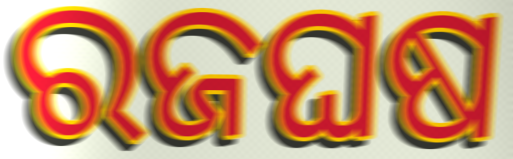
ରଜଘଷ